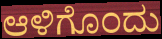
ಆಳಿಗೊಂದು